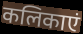
कलिकाएं